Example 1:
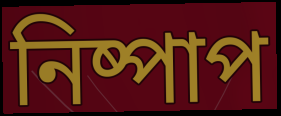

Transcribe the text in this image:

নিষ্পাপ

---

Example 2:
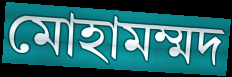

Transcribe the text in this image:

মোহামম্মদ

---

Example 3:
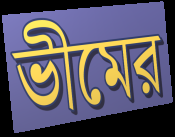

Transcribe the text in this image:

ভীমের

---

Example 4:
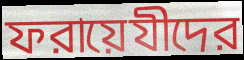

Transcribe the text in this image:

ফরায়েযীদের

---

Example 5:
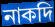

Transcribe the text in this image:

নাকদি